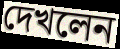
দেখলেন